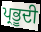
ਪ੍ਰਭੂਦੀ